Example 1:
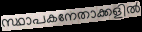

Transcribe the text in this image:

സ്ഥാപകനേതാക്കളിൽ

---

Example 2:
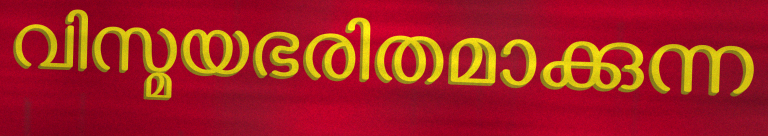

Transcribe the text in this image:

വിസ്മയഭരിതമാക്കുന്ന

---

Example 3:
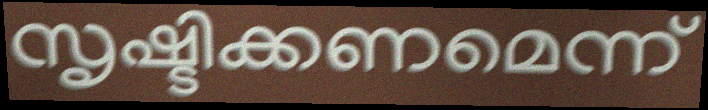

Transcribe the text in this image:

സൃഷ്ടിക്കണമെന്ന്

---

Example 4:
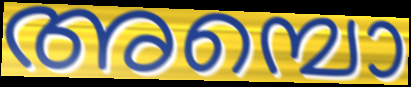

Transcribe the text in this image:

അമ്പൊ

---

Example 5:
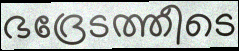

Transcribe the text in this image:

ഭദ്രേടത്തീടെ